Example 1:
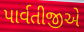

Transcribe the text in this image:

પાર્વતીજીએ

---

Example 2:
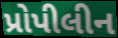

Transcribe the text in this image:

પ્રોપીલીન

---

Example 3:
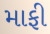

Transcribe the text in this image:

માફી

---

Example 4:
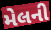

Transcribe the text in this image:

મેલની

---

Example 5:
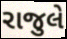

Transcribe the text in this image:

રાજુલે